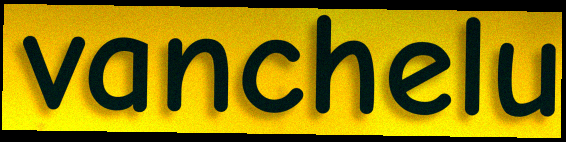
vanchelu